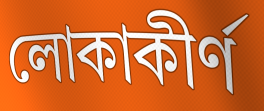
লোকাকীর্ণ